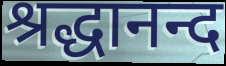
श्रद्धानन्द